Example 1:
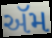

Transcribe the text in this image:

ઍમ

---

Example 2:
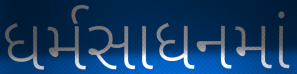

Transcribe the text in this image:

ધર્મસાધનમાં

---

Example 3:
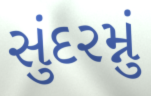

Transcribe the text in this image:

સુંદરમ્નું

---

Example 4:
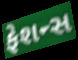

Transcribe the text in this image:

ફેશન્સ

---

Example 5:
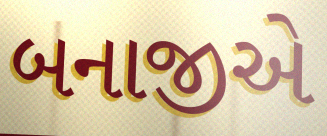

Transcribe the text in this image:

બનાજીએ